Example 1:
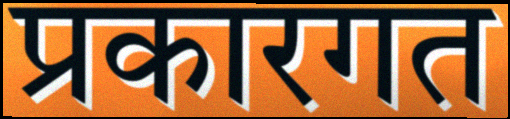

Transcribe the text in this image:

प्रकारगत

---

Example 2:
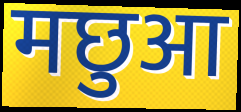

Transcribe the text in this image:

मछुआ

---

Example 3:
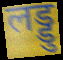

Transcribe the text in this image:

लड्डु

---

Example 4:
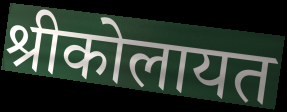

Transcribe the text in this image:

श्रीकोलायत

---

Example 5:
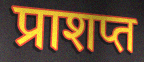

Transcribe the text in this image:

प्राशप्त